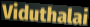
Viduthalai